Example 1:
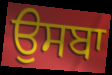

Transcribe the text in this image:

ਉਸਬਾ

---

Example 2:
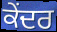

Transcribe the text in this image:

ਕੇੰਦਰ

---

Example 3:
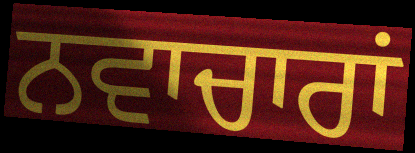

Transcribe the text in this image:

ਨਵਾਚਾਰਾਂ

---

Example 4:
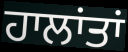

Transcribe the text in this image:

ਹਾਲਾਂਤਾਂ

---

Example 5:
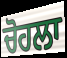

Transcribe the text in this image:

ਚੋਹਲਾ